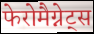
फेरोमैग्नेट्स